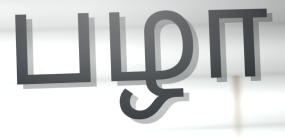
பழா